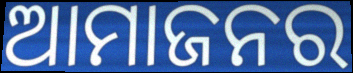
ଆମାଜନର